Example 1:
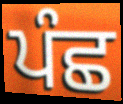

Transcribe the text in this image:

ਪੰਛ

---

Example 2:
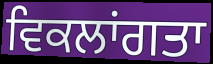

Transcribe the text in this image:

ਵਿਕਲਾਂਗਤਾ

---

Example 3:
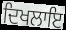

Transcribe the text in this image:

ਦਿਖਲਾਇ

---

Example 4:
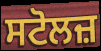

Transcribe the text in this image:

ਸਟੋਲਜ਼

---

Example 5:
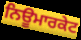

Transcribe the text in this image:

ਨਿਊਮਾਰਕੇਟ